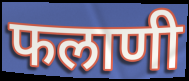
फलाणी